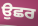
ਉਛਰ